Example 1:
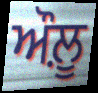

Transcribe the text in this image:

ਔਲ਼ੂ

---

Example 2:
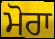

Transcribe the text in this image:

ਮੋਰਾ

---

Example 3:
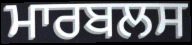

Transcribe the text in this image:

ਮਾਰਬਲਸ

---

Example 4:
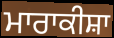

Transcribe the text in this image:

ਮਾਰਾਕੀਸ਼ਾ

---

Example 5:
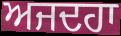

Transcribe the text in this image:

ਅਜਦਹਾ